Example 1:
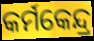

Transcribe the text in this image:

କର୍ମକେନ୍ଦ୍ର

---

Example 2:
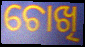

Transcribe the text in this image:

ଚୋଖି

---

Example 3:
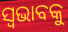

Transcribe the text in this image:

ସ୍ୱଭାବକୁ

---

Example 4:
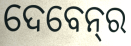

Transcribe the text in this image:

ଦେବେନ୍‌ର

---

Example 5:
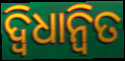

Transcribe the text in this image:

ଦ୍ଵିଧାନ୍ୱିତ